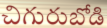
చిగురుబోడి